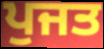
ਪੁਜਤ